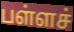
பள்ளச்